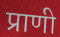
प्राणी